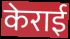
केराई